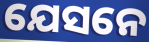
ଯେସନେ